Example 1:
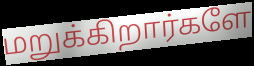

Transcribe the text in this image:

மறுக்கிறார்களே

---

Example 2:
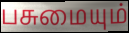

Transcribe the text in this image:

பசுமையும்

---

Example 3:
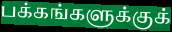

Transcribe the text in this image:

பக்கங்களுக்குக்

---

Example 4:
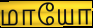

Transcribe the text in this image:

மாயோ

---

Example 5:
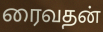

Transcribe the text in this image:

ரைவதன்